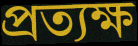
প্ৰত্যক্ষ